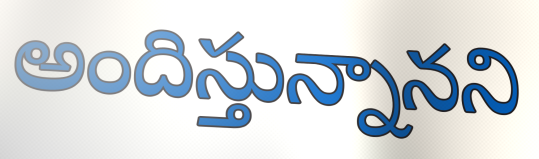
అందిస్తున్నానని